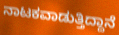
ನಾಟಕವಾಡುತ್ತಿದ್ದಾನೆ